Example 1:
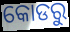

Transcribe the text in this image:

କୋଡରୁ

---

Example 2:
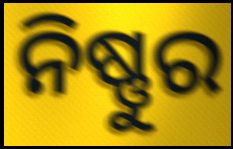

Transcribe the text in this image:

ନିଷ୍ଣୁର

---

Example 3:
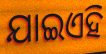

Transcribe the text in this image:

ଯାଇଏହି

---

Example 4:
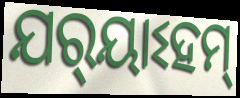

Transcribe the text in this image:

ଯର୍‌ୟାଽହମ୍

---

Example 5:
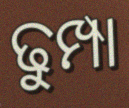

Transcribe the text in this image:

ଢୁମ୍ପା